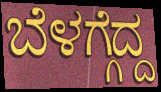
ಬೆಳಗ್ಗೆದ್ದ